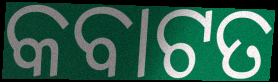
କବାଟତ